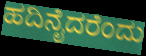
ಹದಿನೈದರೆಂದು